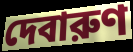
দেবারুণ